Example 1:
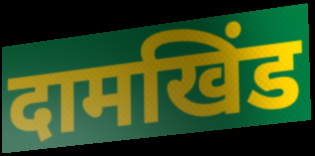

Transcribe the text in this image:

दामखिंड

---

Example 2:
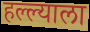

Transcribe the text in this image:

हल्ल्याला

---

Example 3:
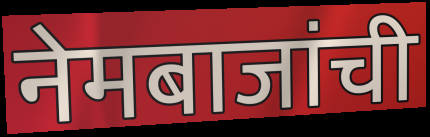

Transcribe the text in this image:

नेमबाजांची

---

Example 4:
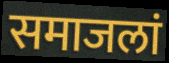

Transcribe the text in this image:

समाजलां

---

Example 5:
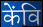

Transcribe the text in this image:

केंवि